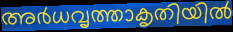
അർധവൃത്താകൃതിയിൽ